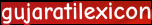
gujaratilexicon